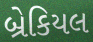
બ્રેકિયલ